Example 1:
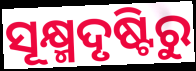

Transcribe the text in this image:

ସୂକ୍ଷ୍ମଦୃଷ୍ଟିରୁ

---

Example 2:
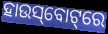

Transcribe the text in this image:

ହାଉସ୍‌ବୋଟ୍‌ରେ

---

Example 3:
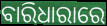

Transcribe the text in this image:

ବାରିଧାରାରେ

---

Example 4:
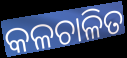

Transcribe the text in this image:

କଳଚାଳିତ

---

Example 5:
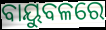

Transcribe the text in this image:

ବାୟୁବଳରେ